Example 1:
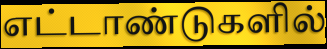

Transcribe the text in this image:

எட்டாண்டுகளில்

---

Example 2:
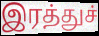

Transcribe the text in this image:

இரத்துச்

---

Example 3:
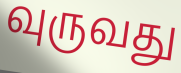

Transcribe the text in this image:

வுருவது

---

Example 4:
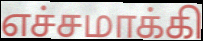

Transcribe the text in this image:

எச்சமாக்கி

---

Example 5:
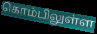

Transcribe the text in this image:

கொம்பிலுள்ள